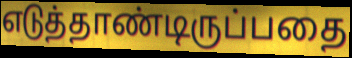
எடுத்தாண்டிருப்பதை